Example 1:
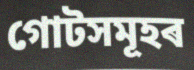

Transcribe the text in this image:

গোটসমূহৰ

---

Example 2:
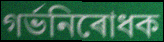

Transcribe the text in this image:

গৰ্ভনিৰোধক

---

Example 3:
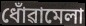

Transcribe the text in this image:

ধোঁৱামেলা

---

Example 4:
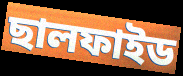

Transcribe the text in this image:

ছালফাইড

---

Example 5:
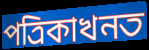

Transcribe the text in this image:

পত্ৰিকাখনত